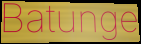
Batunge